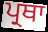
ਪ੍ਰਥਾ